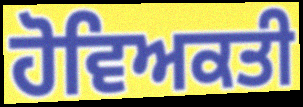
ਹੋਵਿਅਕਤੀ